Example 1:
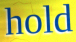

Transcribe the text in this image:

hold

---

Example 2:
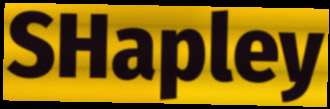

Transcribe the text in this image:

SHapley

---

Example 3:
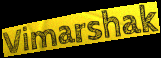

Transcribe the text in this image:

Vimarshak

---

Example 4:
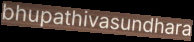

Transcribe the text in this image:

bhupathivasundhara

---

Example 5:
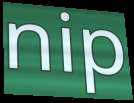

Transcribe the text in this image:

nip